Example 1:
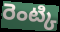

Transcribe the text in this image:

రెంట్కి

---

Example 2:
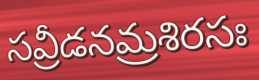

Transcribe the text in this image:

సవ్రీడనమ్రశిరసః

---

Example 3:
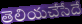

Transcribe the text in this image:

తెలియచేసేదే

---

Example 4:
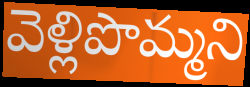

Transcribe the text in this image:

వెళ్లిపొమ్మని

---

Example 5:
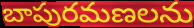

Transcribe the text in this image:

బాపురమణలను